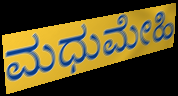
ಮಧುಮೇಹಿ